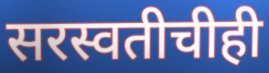
सरस्वतीचीही